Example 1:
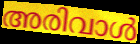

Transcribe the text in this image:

അരിവാൾ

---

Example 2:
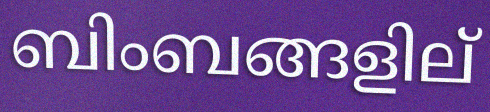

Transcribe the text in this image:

ബിംബങ്ങളില്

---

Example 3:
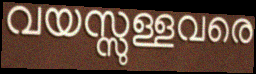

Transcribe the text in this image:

വയസ്സുള്ളവരെ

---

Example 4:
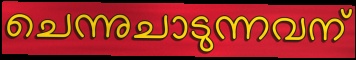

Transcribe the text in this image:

ചെന്നുചാടുന്നവന്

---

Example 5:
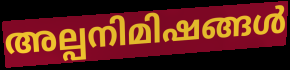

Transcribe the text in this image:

അല്പനിമിഷങ്ങൾ